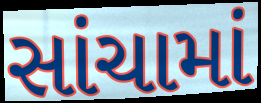
સાંચામાં